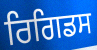
ਰਿਗਿਡਸ